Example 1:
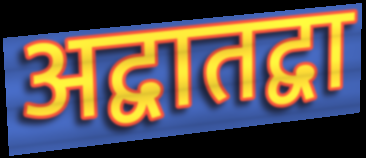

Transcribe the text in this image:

अद्वातद्वा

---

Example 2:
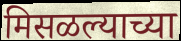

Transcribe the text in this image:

मिसळल्याच्या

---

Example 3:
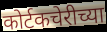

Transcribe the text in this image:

कोर्टकचेरीच्या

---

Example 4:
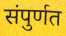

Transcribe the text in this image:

संपुर्णत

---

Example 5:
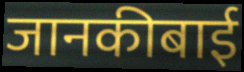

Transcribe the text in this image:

जानकीबाई